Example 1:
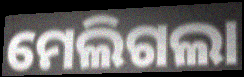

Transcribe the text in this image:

ମେଲିଗଲା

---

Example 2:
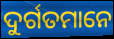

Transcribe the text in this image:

ଦୁର୍ଗତମାନେ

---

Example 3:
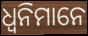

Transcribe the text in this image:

ଧ୍ୱନିମାନେ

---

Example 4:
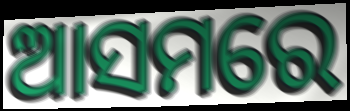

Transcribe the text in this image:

ଆସମରେ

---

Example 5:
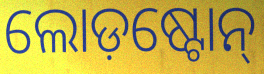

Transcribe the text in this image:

ଲୋଡ଼ଷ୍ଟୋନ୍